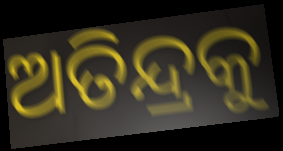
ଅତିନ୍ଦ୍ରକୁ